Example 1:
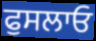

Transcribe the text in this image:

ਫੁਸਲਾਓ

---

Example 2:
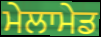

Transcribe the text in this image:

ਮੇਲਾਮੇਡ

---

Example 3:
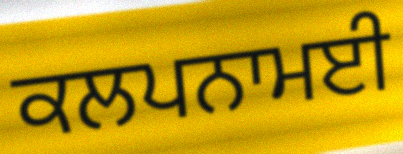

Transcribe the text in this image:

ਕਲਪਨਾਮਈ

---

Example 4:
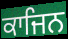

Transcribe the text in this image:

ਕਾਜਿਨ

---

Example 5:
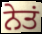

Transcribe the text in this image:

ਨੇਤਂ